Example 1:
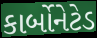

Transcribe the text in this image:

કાર્બોનેટેડ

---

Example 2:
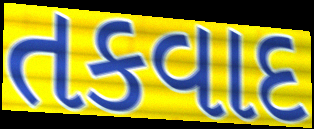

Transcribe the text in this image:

તકવાદ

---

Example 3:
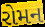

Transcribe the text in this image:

રોમન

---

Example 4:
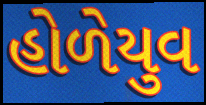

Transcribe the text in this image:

હોળેયુવ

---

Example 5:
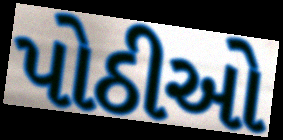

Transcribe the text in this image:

પોઠીઓ